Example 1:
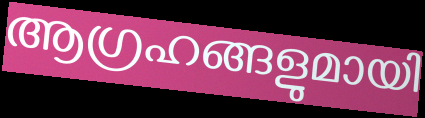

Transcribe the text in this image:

ആഗ്രഹങ്ങളുമായി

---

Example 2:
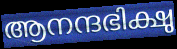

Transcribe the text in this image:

ആനന്ദഭിക്ഷു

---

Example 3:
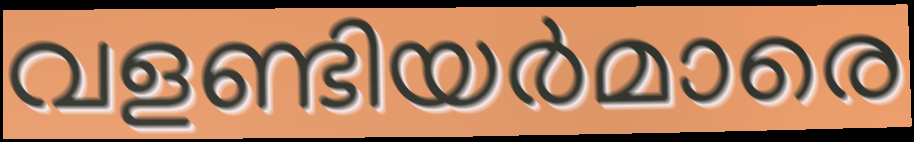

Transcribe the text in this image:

വളണ്ടിയർമാരെ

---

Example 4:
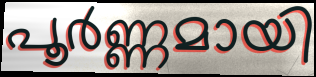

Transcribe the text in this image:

പൂർണ്ണമായി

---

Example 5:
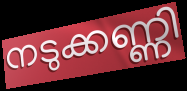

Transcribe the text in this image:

നടുക്കണ്ണി